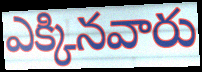
ఎక్కినవారు